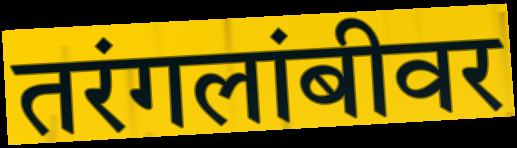
तरंगलांबीवर